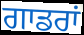
ਗਾਡਰਾਂ